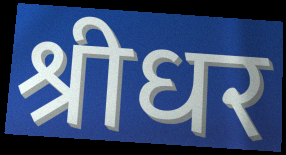
श्रीधर